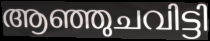
ആഞ്ഞുചവിട്ടി